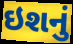
ઇશનું